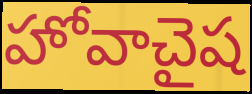
హోవాచైష